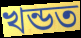
খন্ডত